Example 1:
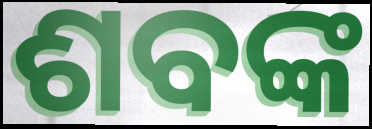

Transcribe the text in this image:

ଶବଙ୍କ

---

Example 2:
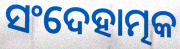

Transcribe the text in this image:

ସଂଦେହାତ୍ମକ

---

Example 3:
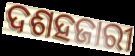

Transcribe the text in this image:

ଦଶହଜାରୀ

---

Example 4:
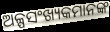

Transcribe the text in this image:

ଅଳ୍ପସଂଖ୍ୟକମାନଙ୍କ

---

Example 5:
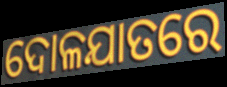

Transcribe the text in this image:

ଦୋଳଯାତରେ